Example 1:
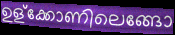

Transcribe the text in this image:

ഉള്ക്കോണിലെങ്ങോ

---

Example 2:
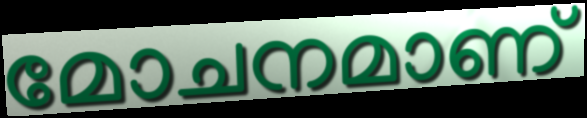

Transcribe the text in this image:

മോചനമാണ്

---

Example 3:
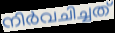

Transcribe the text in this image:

നിർവചിച്ചത്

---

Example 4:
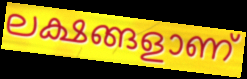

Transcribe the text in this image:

ലക്ഷങ്ങളാണ്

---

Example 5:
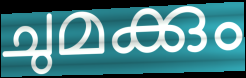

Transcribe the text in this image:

ചുമക്കും